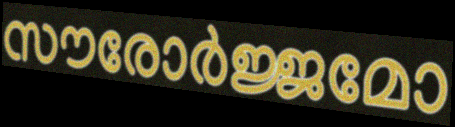
സൗരോർജ്ജമോ